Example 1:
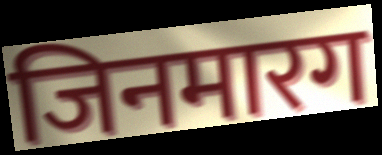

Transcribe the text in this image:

जिनमारग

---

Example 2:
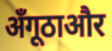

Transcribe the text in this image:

अँगूठाऔर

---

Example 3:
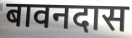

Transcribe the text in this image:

बावनदास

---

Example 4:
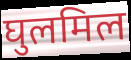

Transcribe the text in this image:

घुलमिल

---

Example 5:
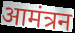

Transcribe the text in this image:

आमंत्रन